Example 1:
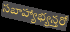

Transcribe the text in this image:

సబాహ్యాభ్యన్తరో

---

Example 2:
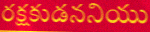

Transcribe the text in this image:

రక్షకుడననియు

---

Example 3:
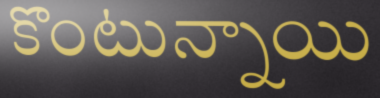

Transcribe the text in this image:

కొంటున్నాయి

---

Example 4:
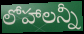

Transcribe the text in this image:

లోహాలన్నీ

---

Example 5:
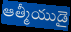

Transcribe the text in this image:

ఆత్మీయుడై